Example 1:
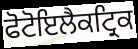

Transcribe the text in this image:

ਫੋਟੋਇਲੈਕਟ੍ਰਿਕ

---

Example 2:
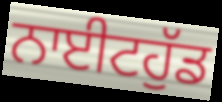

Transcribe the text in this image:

ਨਾਈਟਹੁੱਡ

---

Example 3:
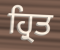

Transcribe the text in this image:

ਹ੍ਰਿਤ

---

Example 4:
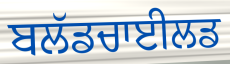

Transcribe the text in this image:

ਬਲੱਡਚਾਈਲਡ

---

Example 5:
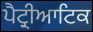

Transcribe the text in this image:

ਪੈਟ੍ਰੀਆਟਿਕ